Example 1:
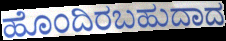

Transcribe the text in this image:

ಹೊಂದಿರಬಹುದಾದ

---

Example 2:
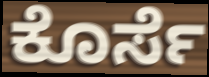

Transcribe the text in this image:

ಕೊರ್ಸೆ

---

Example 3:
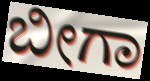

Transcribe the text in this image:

ಬೀಗಾ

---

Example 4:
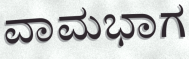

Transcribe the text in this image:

ವಾಮಭಾಗ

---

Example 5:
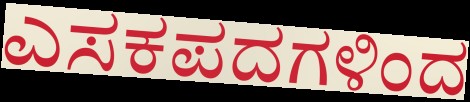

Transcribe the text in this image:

ಎಸಕಪದಗಳಿಂದ